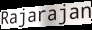
Rajarajan